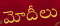
మోదీలు